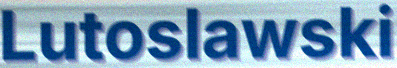
Lutoslawski